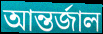
আন্তর্জাল